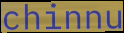
chinnu